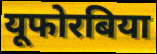
यूफोरबिया